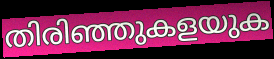
തിരിഞ്ഞുകളയുക